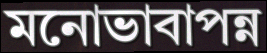
মনোভাবাপন্ন